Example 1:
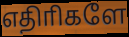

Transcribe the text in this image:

எதிரிகளே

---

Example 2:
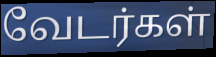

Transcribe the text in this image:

வேடர்கள்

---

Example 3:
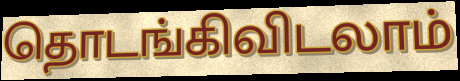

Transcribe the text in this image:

தொடங்கிவிடலாம்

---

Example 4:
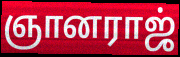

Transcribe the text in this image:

ஞானராஜ்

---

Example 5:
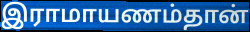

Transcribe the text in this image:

இராமாயணம்தான்